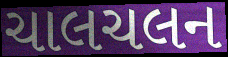
ચાલચલન